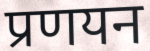
प्रणयन